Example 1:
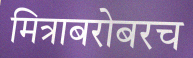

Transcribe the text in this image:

मित्राबरोबरच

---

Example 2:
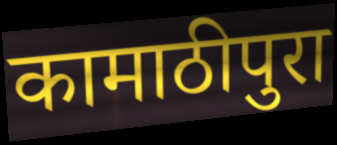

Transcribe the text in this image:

कामाठीपुरा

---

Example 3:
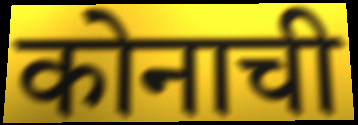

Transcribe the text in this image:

कोनाची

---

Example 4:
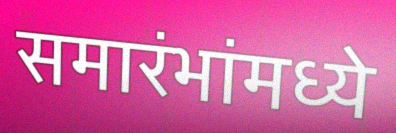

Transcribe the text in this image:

समारंभांमध्ये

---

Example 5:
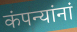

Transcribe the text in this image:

कंपन्यांनां